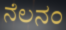
ನೆಲನಂ